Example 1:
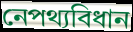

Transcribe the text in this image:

নেপথ্যবিধান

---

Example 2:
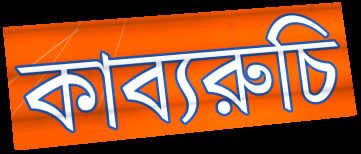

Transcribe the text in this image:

কাব্যরুচি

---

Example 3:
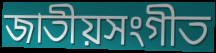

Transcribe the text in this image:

জাতীয়সংগীত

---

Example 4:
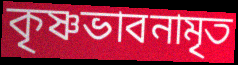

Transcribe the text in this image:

কৃষ্ণভাবনামৃত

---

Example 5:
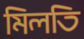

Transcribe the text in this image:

মিলতি